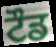
ਟੌਡ